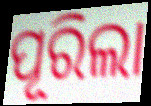
ପୂରିଲା